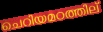
ചെറിയമഠത്തില്